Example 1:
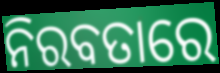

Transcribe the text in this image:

ନିରବତାରେ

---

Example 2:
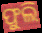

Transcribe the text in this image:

ଫୁଲି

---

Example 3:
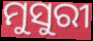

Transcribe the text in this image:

ମୁସୁରୀ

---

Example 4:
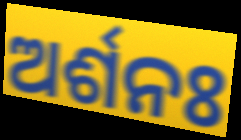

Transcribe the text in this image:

ଅର୍ଶନଃ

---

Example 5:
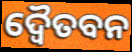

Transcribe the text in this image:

ଦ୍ୱୈତବନ